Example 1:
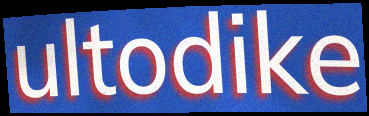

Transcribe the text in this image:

ultodike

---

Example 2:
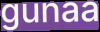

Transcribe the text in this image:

gunaa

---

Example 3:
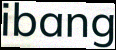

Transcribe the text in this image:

ibang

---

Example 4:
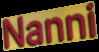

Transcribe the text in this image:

Nanni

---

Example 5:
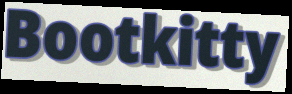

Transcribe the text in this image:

Bootkitty